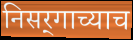
निसर्गाच्याच